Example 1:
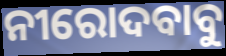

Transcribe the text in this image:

ନୀରୋଦବାବୁ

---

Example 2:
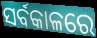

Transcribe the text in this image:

ସର୍ବକାଳରେ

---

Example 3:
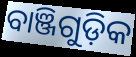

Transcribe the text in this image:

ବାଞ୍ଜିଗୁଡ଼ିକ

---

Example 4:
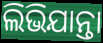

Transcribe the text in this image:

ଲିଭିଯାନ୍ତା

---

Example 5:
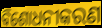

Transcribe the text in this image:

ବିଶୋଧନୀକରଣ